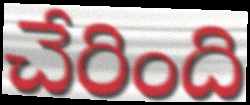
చేరింది